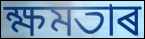
ক্ষমতাৰ